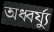
অধ্বর্য্যু